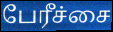
பேரீச்சை